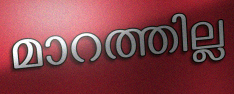
മാറത്തില്ല